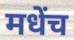
मधेंच